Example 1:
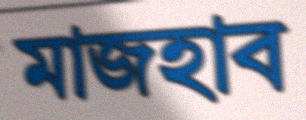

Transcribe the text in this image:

মাজহাব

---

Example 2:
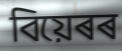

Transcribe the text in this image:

বিয়েৰৰ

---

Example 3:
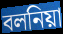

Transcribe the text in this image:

বলনিয়া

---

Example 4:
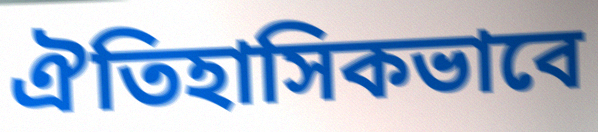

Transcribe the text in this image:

ঐতিহাসিকভাবে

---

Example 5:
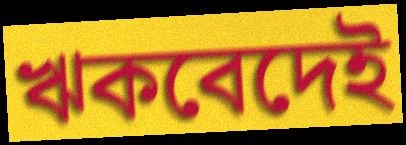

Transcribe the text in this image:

ঋকবেদেই